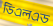
ডিএলএড